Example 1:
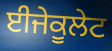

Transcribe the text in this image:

ਈਜੇਕੂਲੇਟ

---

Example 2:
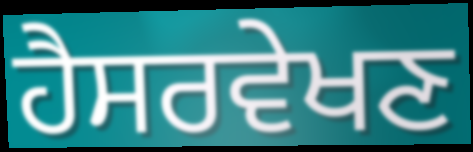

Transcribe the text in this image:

ਹੈਸਰਵੇਖਣ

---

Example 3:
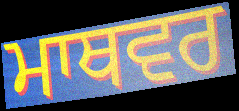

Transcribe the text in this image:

ਮਾਥਵਰ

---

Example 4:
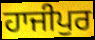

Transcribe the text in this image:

ਹਾਜੀਪੁਰ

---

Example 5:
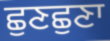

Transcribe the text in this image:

ਛੁਣਛੁਣਾ